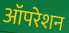
ऑपरेशन